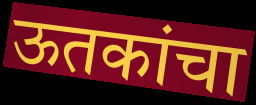
ऊतकांचा